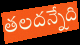
తలదన్నేది